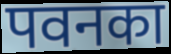
पवनका